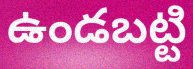
ఉండబట్టి